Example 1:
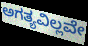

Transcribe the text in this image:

ಅಗತ್ಯವಿಲ್ಲವೇ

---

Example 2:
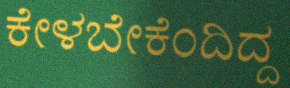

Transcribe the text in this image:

ಕೇಳಬೇಕೆಂದಿದ್ದ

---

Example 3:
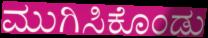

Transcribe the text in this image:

ಮುಗಿಸಿಕೊಂಡು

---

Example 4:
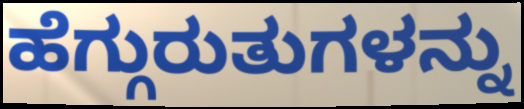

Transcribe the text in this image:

ಹೆಗ್ಗುರುತುಗಳನ್ನು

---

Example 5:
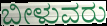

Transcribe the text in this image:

ಬೀಳುವರು